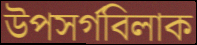
উপসৰ্গবিলাক